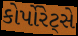
કોર્પોરેટ્સે